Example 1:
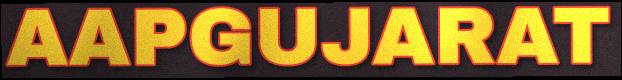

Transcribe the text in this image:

AAPGUJARAT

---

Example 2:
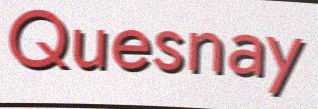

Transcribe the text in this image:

Quesnay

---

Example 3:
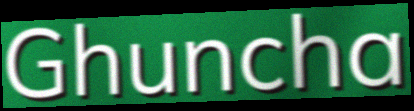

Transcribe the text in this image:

Ghuncha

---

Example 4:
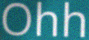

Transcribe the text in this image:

Ohh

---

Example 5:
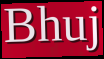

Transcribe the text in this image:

Bhuj